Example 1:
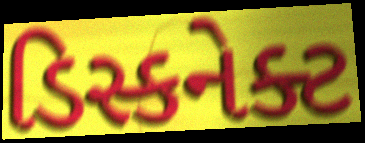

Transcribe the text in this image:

ડિસ્કનેક્ટ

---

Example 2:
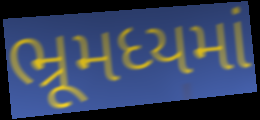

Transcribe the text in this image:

ભ્રૂમધ્યમાં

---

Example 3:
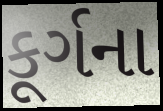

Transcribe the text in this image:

કૂર્ગના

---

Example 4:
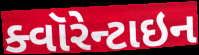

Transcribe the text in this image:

ક્વૉરેન્ટાઇન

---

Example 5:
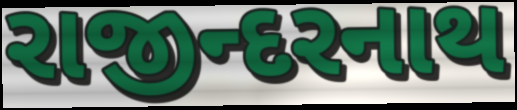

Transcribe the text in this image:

રાજીન્દરનાથ